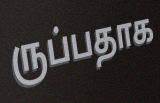
ருப்பதாக